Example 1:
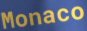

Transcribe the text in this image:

Monaco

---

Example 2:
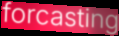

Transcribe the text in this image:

forcasting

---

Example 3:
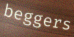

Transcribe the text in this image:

beggers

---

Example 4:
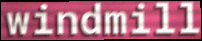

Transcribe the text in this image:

windmill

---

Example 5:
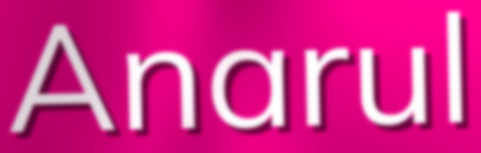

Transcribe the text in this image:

Anarul